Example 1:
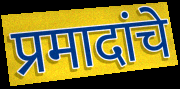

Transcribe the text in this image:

प्रमादांचे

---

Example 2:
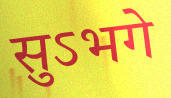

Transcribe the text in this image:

सुऽभगे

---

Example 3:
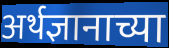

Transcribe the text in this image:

अर्थज्ञानाच्या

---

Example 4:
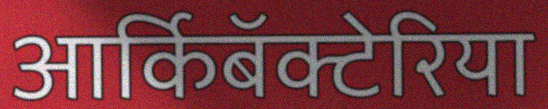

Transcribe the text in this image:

आर्किबॅक्टेरिया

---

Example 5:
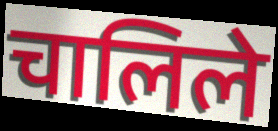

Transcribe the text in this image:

चालिले